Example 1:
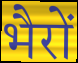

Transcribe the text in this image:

भैरों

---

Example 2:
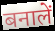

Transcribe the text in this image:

बनालें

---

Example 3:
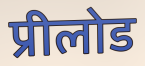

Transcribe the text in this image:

प्रीलोड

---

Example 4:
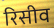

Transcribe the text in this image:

रिसीव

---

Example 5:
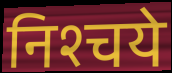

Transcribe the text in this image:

निश्चये